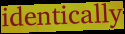
identically